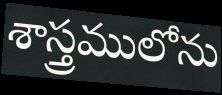
శాస్త్రములోను